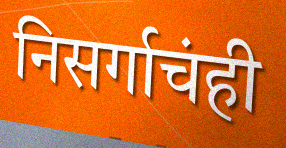
निसर्गाचंही